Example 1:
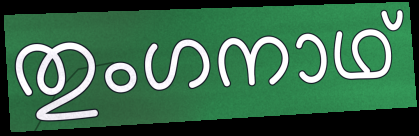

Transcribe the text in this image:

തുംഗനാഥ്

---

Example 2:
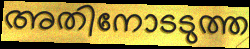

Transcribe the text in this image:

അതിനോടടുത്ത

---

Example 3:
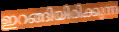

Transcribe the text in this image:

ഇറങ്ങിയിരിക്കുന്ന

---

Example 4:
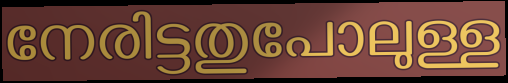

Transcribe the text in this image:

നേരിട്ടതുപോലുള്ള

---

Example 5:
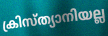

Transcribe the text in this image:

ക്രിസ്ത്യാനിയല്ല